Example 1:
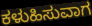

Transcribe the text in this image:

ಕಳುಹಿಸುವಾಗ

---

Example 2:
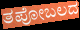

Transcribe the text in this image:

ತಪೋಬಲದ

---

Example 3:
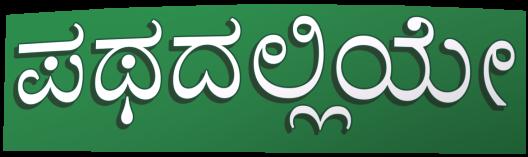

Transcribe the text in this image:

ಪಥದಲ್ಲಿಯೇ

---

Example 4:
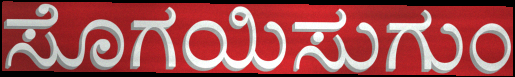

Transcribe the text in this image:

ಸೊಗಯಿಸುಗುಂ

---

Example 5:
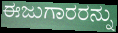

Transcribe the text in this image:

ಈಜುಗಾರರನ್ನು